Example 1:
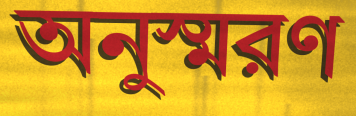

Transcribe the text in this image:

অনুস্মরণ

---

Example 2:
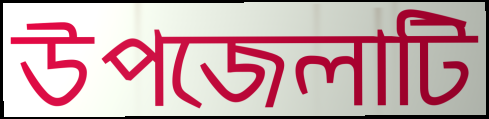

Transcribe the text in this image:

উপজেলাটি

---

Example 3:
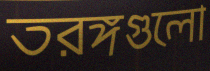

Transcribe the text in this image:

তরঙ্গগুলো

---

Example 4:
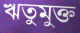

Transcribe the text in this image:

ঋতুমুক্ত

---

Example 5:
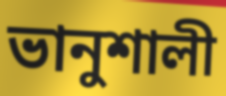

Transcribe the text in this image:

ভানুশালী